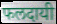
फलदायी